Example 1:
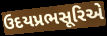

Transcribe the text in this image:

ઉદયપ્રભસૂરિએ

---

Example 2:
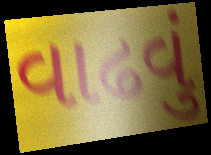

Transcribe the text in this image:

વાઢવું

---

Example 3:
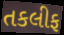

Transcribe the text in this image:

તકલીફ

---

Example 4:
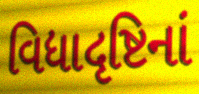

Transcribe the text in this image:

વિદ્યાદૃષ્ટિનાં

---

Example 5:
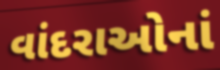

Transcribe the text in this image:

વાંદરાઓનાં